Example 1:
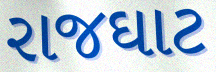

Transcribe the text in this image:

રાજઘાટ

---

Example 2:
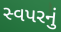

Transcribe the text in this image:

સ્વપરનું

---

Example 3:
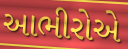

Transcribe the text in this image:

આભીરોએ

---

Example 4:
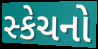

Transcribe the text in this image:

સ્કેચનો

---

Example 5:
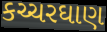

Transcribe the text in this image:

કચ્ચરઘાણ